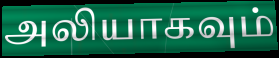
அலியாகவும்